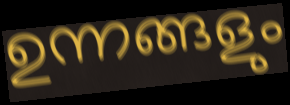
ഉന്നങ്ങളും